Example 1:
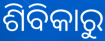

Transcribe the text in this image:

ଶିବିକାରୁ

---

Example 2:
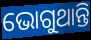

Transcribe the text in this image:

ଭୋଗୁଥାନ୍ତି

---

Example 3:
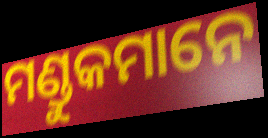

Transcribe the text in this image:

ମଣ୍ଡୁକମାନେ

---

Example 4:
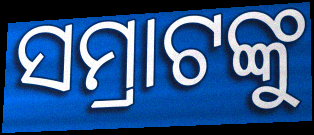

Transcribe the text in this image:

ସମ୍ରାଟଙ୍କୁ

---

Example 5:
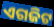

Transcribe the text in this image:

ଏଗଜିଟ